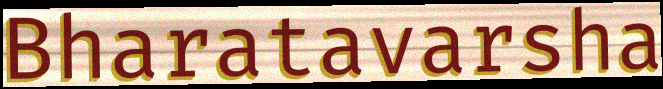
Bharatavarsha